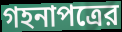
গহনাপত্রের